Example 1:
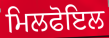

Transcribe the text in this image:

ਮਿਲਫੋਇਲ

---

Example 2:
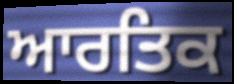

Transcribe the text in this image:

ਆਰਤਿਕ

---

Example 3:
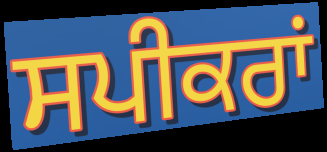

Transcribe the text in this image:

ਸਪੀਕਰਾਂ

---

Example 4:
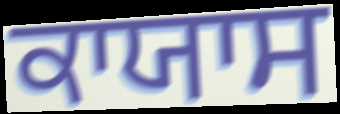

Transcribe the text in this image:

ਕਾਯਾਸ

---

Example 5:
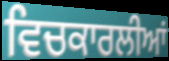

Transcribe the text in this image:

ਵਿਚਕਾਰਲੀਆਂ